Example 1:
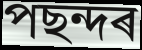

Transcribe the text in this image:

পছন্দৰ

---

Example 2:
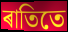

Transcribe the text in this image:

ৰাতিতে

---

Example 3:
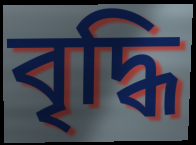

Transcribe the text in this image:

বৃদ্ধি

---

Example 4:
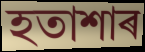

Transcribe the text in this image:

হতাশাৰ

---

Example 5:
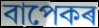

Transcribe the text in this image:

বাপেকৰ